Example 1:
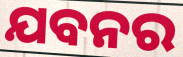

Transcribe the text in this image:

ଯବନର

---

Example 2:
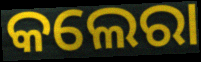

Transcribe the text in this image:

କଲେରା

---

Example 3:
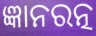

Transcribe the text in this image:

ଜ୍ଞାନରତ୍ନ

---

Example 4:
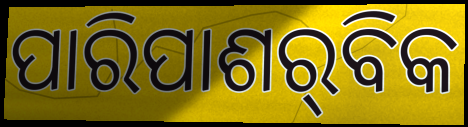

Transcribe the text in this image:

ପାରିପାଶର୍‌ବିକ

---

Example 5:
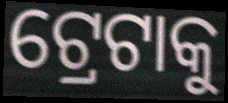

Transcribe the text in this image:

ଟ୍ରେଟାକୁ